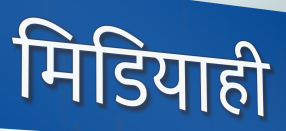
मिडियाही